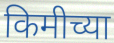
किमीच्या